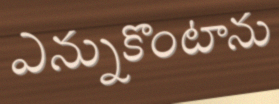
ఎన్నుకొంటాను